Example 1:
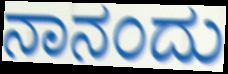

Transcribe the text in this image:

ನಾನಂದು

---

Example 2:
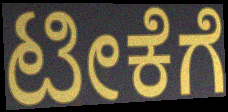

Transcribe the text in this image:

ಟೀಕೆಗೆ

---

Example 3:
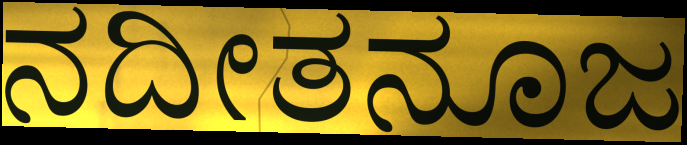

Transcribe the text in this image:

ನದೀತನೂಜ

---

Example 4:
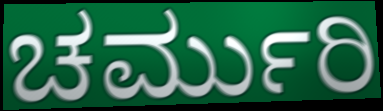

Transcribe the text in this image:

ಚರ್ಮುರಿ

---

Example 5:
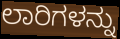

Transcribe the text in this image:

ಲಾರಿಗಳನ್ನು